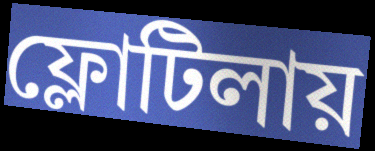
ফ্লোটিলায়